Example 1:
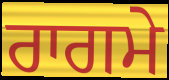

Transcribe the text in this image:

ਰਾਗਮੇ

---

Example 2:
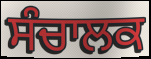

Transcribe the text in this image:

ਸੰਚਾਲਕ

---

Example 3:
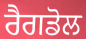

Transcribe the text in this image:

ਰੈਗਡੋਲ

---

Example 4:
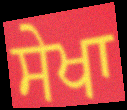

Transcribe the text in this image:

ਸੇਖਾ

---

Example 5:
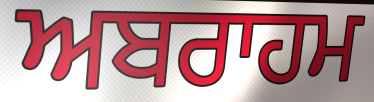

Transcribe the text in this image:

ਅਬਰਾਹਮ